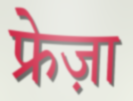
फ्रेज़ा